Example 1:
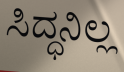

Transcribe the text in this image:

ಸಿದ್ಧನಿಲ್ಲ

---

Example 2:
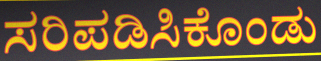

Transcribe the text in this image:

ಸರಿಪಡಿಸಿಕೊಂಡು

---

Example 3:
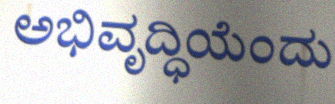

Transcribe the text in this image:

ಅಭಿವೃದ್ಧಿಯೆಂದು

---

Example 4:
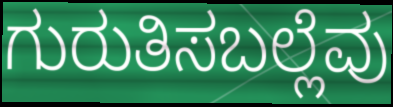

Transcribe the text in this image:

ಗುರುತಿಸಬಲ್ಲೆವು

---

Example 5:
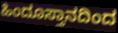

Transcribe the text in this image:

ಹಿಂದೂಸ್ತಾನದಿಂದ